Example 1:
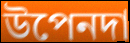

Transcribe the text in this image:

উপেনদা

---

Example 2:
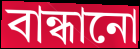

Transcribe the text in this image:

বান্ধানো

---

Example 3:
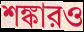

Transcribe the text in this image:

শঙ্কারও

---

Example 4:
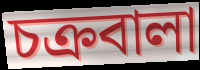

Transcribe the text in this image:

চক্রবালা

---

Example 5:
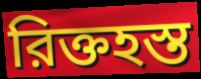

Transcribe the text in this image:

রিক্তহস্ত